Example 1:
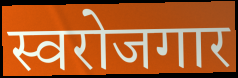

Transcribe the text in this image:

स्वरोजगार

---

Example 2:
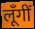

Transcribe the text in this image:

लूँगीं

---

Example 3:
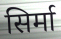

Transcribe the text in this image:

सिर्मा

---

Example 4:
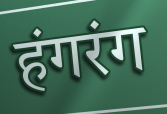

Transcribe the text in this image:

हंगरंग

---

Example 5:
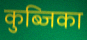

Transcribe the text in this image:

कुब्जिका